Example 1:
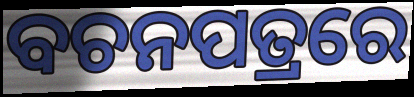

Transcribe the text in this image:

ବଚନପତ୍ରରେ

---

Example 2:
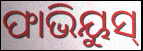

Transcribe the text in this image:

ଫାଭିୟୁସ୍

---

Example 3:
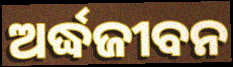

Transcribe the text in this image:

ଅର୍ଦ୍ଧଜୀବନ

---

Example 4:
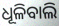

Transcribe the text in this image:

ଧୂଳିବାଲି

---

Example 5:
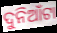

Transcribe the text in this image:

ଦୁନିଆଁଟା